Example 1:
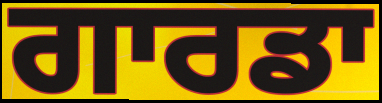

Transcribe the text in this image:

ਗਾਰਡਾ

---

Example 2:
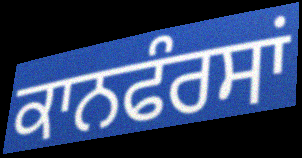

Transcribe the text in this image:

ਕਾਨਫੰਰਸਾਂ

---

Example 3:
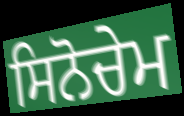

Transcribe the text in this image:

ਸਿਨੋਚੇਮ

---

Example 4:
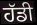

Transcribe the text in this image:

ਹੱਡੀ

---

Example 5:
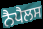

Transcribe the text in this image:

ਨੈਪੈਲਸ